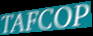
TAFCOP